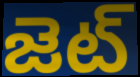
జెట్